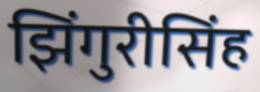
झिंगुरीसिंह